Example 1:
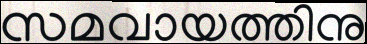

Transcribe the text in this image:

സമവായത്തിനു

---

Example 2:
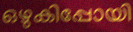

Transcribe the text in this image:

ഒഴുകിപ്പോയി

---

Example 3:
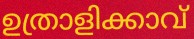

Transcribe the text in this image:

ഉത്രാളിക്കാവ്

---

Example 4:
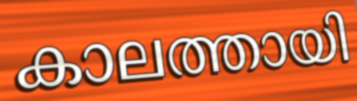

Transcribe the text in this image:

കാലത്തായി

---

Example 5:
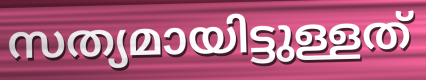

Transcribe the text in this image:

സത്യമായിട്ടുള്ളത്